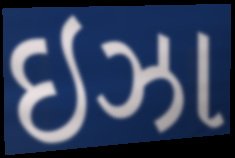
ઇઝા